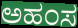
ಅಹಂಸ